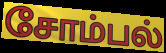
சோம்பல்